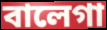
বালেগা